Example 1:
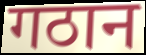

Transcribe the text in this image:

गठान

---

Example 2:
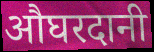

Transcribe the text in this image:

औघरदानी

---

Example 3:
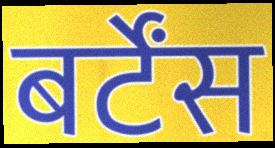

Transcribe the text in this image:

बर्टेंस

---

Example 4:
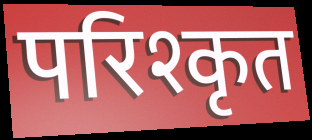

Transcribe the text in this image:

परिश्कृत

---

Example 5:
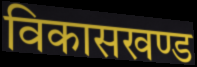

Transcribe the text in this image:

विकासखण्‍ड